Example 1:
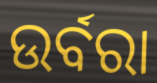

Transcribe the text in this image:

ଉର୍ବରା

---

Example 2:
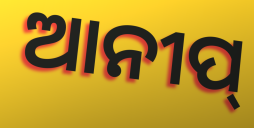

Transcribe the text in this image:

ଆନୀପ୍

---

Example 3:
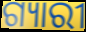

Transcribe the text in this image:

ଗ୍ୟାରୀ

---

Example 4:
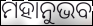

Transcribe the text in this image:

ମହାନୁଭବ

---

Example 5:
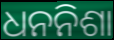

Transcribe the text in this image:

ଧନନିଶା